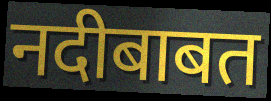
नदीबाबत